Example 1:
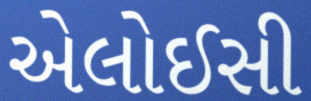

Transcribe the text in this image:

એલોઈસી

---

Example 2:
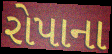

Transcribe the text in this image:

રોપાના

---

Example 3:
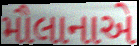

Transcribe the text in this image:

મૌલાનાએ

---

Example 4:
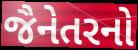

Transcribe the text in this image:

જૈનેતરનો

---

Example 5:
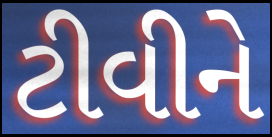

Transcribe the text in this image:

ટીવીને